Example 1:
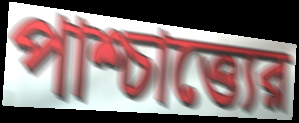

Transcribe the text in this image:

পাশ্চাত্ত্যের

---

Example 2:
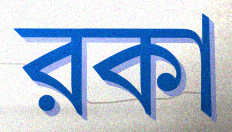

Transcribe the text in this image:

রকা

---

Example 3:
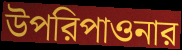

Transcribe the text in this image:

উপরিপাওনার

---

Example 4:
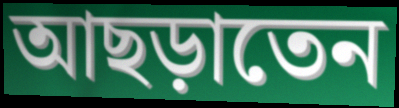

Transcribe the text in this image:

আছড়াতেন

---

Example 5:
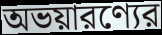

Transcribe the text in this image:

অভয়ারণ্যের